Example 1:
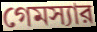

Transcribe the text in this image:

গেমস্যার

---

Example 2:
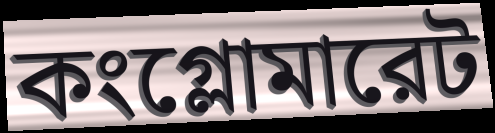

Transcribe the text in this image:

কংগ্লোমারেট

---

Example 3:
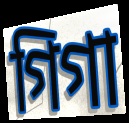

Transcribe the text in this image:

গিগা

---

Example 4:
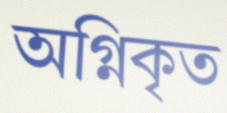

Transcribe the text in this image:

অগ্নিকৃত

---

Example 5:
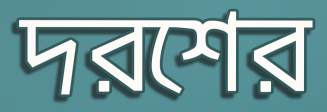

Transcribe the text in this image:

দরশের